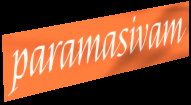
paramasivam